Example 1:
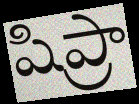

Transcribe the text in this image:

షిప్రా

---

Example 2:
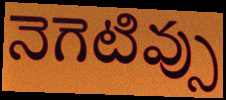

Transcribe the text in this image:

నెగెటివ్సు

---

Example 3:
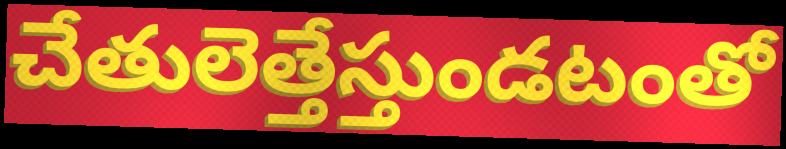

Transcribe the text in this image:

చేతులెత్తేస్తుండటంతో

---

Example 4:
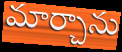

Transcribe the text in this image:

మార్చాను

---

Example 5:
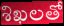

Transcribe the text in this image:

శిఖలతో